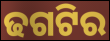
ଢଗଟିର